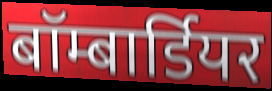
बॉम्बार्डियर